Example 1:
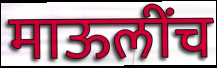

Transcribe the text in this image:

माऊलींच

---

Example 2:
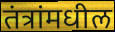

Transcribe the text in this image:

तंत्रांमधील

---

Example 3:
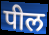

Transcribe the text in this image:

पील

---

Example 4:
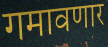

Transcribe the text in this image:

गमावणार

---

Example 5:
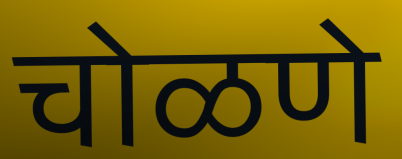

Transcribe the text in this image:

चोळणे